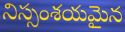
నిస్సంశయమైన